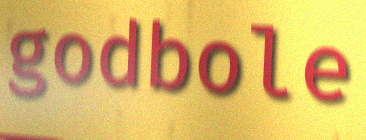
godbole